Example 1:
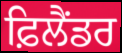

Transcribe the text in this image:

ਫ਼ਿਲੈਂਡਰ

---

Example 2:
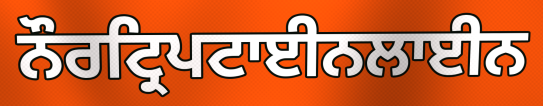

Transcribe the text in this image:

ਨੌਰਟ੍ਰਿਪਟਾਈਨਲਾਈਨ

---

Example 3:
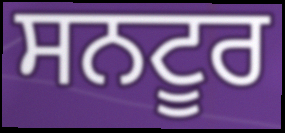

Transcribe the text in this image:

ਸਨਟੂਰ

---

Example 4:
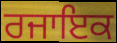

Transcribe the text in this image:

ਰਜਾਇਕ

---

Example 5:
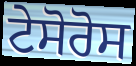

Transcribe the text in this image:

ਟੇਸੋਰੋਸ